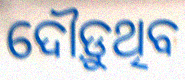
ଦୌଡ଼ୁଥିବ